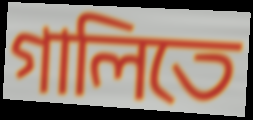
গালিতে